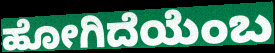
ಹೋಗಿದೆಯೆಂಬ